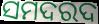
ସମଦରଦ